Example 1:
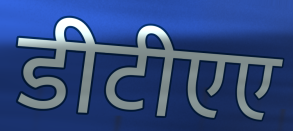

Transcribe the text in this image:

डीटीएए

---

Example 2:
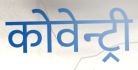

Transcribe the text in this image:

कोवेन्ट्री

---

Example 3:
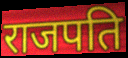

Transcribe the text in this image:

राजपति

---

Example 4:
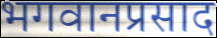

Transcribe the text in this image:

भगवानप्रसाद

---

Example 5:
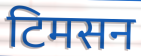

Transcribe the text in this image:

टिमसन